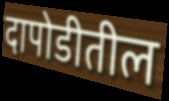
दापोडीतील